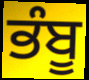
ਭੰਬੂ